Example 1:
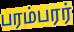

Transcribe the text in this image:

பரம்பரர்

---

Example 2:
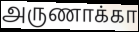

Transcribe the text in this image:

அருணாக்கா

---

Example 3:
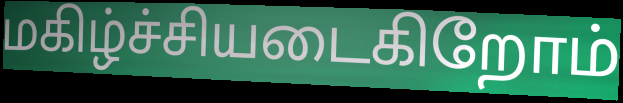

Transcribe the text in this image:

மகிழ்ச்சியடைகிறோம்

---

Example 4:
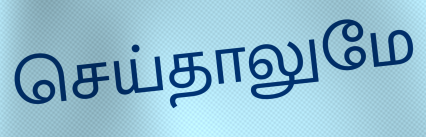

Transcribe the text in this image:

செய்தாலுமே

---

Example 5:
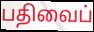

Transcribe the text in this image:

பதிவைப்